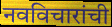
नवविचारांची